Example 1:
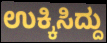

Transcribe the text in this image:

ಉಕ್ಕಿಸಿದ್ದು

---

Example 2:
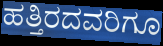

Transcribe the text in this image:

ಹತ್ತಿರದವರಿಗೂ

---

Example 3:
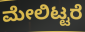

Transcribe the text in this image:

ಮೇಲಿಟ್ಟರೆ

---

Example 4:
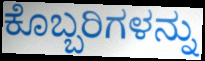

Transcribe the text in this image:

ಕೊಬ್ಬರಿಗಳನ್ನು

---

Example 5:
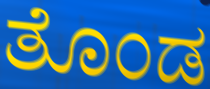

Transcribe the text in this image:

ತೊಂಡ